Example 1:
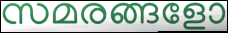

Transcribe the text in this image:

സമരങ്ങളോ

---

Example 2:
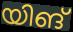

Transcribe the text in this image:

യിങ്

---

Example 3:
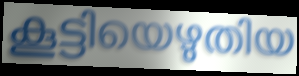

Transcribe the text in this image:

കൂട്ടിയെഴുതിയ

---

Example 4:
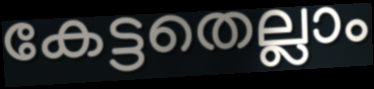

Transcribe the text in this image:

കേട്ടതെല്ലാം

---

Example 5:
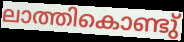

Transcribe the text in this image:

ലാത്തികൊണ്ടു്